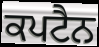
ਕਪਟੈਨ